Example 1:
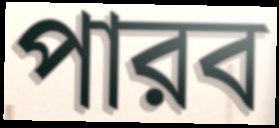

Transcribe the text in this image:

পারব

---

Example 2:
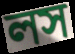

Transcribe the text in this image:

লস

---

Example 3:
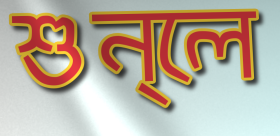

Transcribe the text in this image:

শুন্‌লে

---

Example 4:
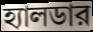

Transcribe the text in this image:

হ্যালডার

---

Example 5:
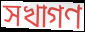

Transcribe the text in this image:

সখাগণ